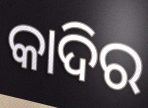
କାଦିର